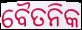
ବୈତନିକ